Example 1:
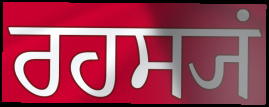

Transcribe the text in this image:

ਰਹਸ੍ਯਂ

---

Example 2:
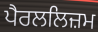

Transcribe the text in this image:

ਪੈਰਲਲਿਜ਼ਮ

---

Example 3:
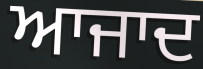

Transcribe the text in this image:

ਆਜਾਦ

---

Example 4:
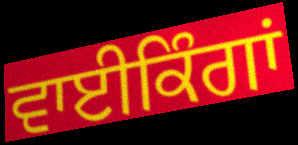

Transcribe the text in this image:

ਵਾਈਕਿੰਗਾਂ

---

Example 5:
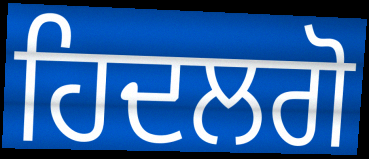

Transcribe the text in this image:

ਹਿਦਲਗੋ